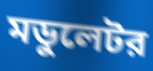
মডুলেটর